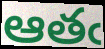
ఆతఁ